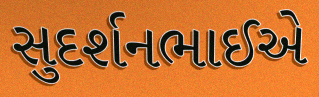
સુદર્શનભાઈએ